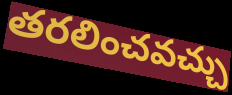
తరలించవచ్చు